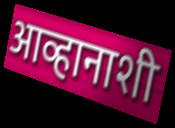
आव्हानाशी